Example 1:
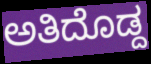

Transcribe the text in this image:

ಅತಿದೊಡ್ದ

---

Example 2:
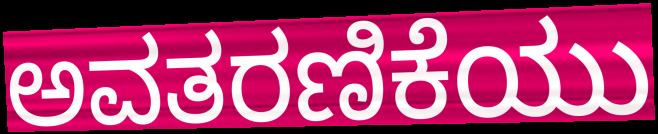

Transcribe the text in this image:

ಅವತರಣಿಕೆಯು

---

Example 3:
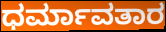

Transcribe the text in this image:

ಧರ್ಮಾವತಾರ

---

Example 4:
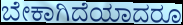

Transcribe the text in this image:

ಬೇಕಾಗಿದೆಯಾದರೂ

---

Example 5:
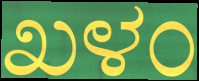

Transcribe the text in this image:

ಖಳಂ